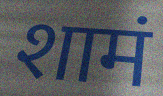
शामं